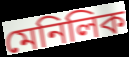
মেনিলিক